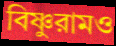
বিষ্ণুরামও